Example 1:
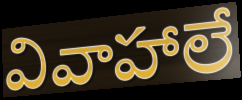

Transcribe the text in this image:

వివాహాలే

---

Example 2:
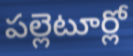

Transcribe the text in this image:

పల్లెటూర్లో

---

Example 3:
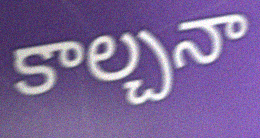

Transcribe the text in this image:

కాల్చనా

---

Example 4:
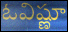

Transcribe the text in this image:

ఓవిష్ణూ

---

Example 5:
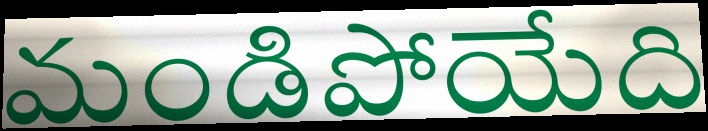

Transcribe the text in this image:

మండిపోయేది